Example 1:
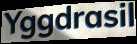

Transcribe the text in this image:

Yggdrasil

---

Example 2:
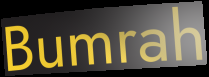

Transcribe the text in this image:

Bumrah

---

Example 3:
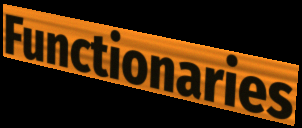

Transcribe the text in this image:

Functionaries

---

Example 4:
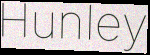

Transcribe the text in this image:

Hunley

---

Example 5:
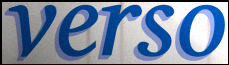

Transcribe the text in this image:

verso